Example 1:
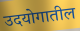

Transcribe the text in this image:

उदयोगातील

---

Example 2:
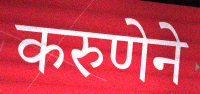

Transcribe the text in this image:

करुणेने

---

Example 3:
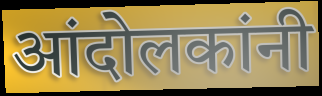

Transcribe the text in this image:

आंदोलकांनी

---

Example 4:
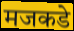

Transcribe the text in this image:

मजकडे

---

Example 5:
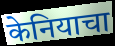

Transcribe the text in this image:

केनियाचा